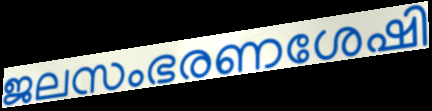
ജലസംഭരണശേഷി